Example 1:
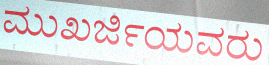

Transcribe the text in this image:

ಮುಖರ್ಜಿಯವರು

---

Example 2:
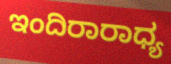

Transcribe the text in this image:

ಇಂದಿರಾರಾಧ್ಯ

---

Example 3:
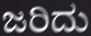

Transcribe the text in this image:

ಜರಿದು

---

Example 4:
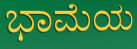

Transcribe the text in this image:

ಭಾಮೆಯ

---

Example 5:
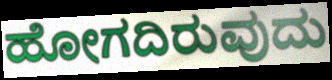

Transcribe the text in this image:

ಹೋಗದಿರುವುದು